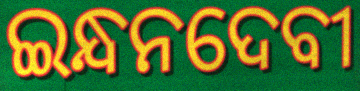
ଇନ୍ଧନଦେବୀ